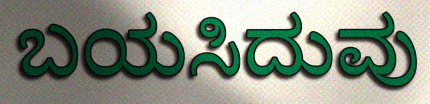
ಬಯಸಿದುವು